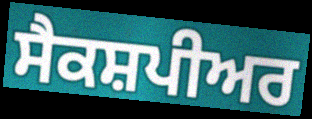
ਸੈਕਸ਼ਪੀਅਰ